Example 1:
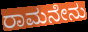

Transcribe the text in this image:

ರಾಮನೇನು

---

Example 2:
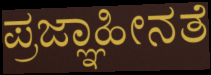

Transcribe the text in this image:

ಪ್ರಜ್ಞಾಹೀನತೆ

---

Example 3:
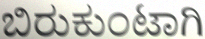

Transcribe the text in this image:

ಬಿರುಕುಂಟಾಗಿ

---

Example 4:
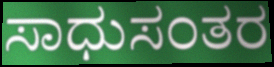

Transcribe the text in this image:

ಸಾಧುಸಂತರ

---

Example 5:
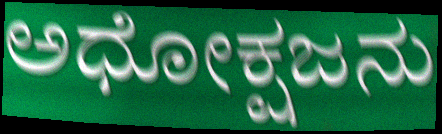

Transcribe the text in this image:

ಅಧೋಕ್ಷಜನು